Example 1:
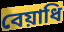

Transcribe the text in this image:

বেয়াধি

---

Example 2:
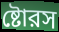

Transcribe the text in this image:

ষ্টোরস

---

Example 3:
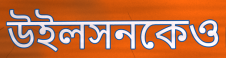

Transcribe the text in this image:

উইলসনকেও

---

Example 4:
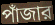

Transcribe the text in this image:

পাঁজার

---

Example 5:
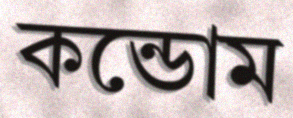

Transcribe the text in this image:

কন্ডোম